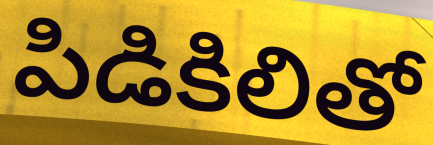
పిడికిలితో